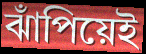
ঝাঁপিয়েই